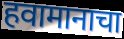
हवामानाचा